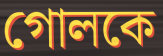
গোলকে